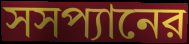
সসপ্যানের